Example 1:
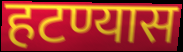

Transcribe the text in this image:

हटण्यास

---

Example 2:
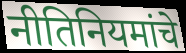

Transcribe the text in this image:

नीतिनियमांचे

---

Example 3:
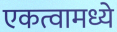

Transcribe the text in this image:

एकत्वामध्ये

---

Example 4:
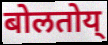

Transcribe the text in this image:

बोलतोय्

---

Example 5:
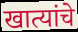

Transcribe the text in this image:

खात्यांचे